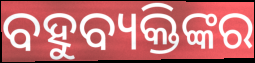
ବହୁବ୍ୟକ୍ତିଙ୍କର